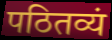
पठितव्यं